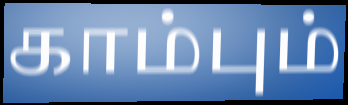
காம்பும்